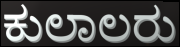
ಕುಲಾಲರು